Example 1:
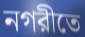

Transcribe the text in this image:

নগরীতে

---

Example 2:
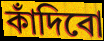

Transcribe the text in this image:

কাঁদিবো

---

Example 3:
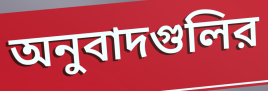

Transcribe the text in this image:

অনুবাদগুলির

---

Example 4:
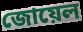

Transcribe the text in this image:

জোয়েল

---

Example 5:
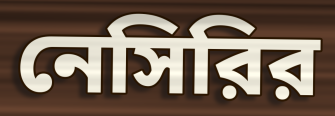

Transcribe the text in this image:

নেসিরির